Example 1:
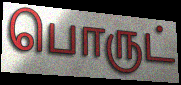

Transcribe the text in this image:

பொருட்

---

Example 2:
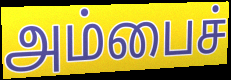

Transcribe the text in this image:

அம்பைச்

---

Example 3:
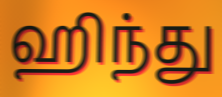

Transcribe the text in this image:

ஹிந்து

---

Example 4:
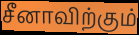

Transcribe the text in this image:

சீனாவிற்கும்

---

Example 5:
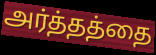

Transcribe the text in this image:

அர்த்தத்தை